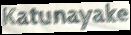
Katunayake